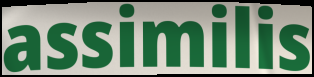
assimilis